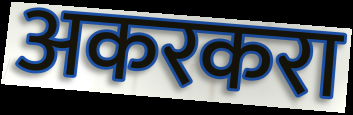
अकरकरा